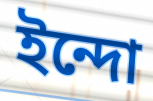
ইন্দো